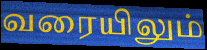
வரையிலும்